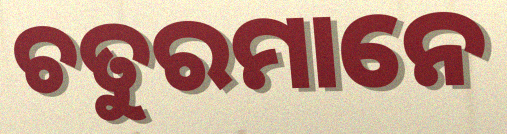
ଚତୁରମାନେ